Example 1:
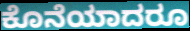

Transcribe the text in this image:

ಕೊನೆಯಾದರೂ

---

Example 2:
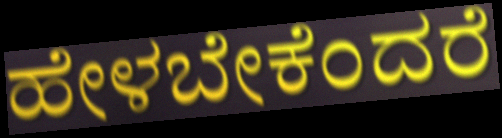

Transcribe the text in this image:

ಹೇಳಬೇಕೆಂದರೆ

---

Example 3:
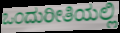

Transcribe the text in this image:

ಒಂದುರೀತಿಯಲ್ಲಿ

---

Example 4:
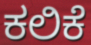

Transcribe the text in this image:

ಕಲಿಕೆ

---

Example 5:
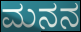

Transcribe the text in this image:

ಮನನ